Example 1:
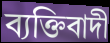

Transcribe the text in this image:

ব্যক্তিবাদী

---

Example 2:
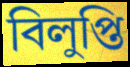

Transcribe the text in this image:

বিলুপ্তি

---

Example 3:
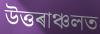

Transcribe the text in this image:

উত্তৰাঞ্চলত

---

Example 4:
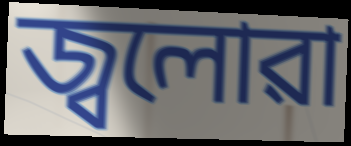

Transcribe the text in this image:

জ্বলোৱা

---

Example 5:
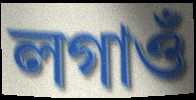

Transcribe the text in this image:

লগাওঁ